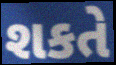
શકતે